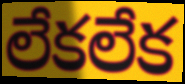
లేకలేక